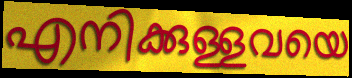
എനിക്കുള്ളവയെ